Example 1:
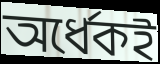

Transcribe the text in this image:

অর্ধেকই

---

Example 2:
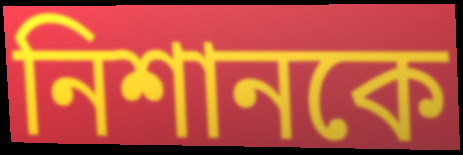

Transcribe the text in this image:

নিশানকে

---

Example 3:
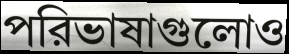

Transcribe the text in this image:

পরিভাষাগুলোও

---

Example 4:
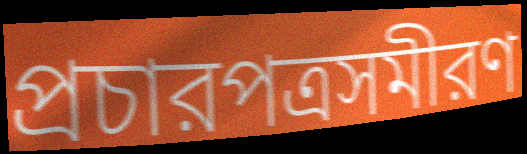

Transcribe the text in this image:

প্রচারপত্রসমীরণ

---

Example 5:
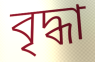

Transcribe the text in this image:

বৃদ্ধা